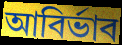
আবির্ভাব